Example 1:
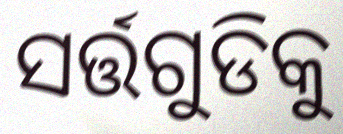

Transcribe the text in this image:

ସର୍ତ୍ତଗୁଡିକୁ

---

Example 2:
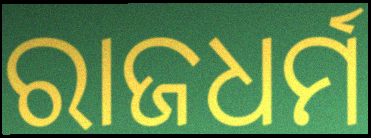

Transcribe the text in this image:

ରାଜଧର୍ମ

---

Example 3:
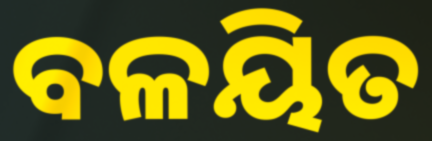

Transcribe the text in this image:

ବଳୟିତ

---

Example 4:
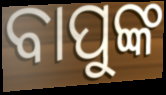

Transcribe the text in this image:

ବାପୁଙ୍କ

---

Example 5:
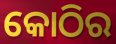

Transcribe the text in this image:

କୋଠିର